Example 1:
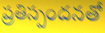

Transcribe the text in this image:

ప్రతిస్పందనతో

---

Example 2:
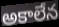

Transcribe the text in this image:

అకాలేన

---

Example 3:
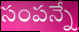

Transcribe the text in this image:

సంపన్నే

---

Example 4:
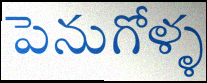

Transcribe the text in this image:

పెనుగోళ్ళ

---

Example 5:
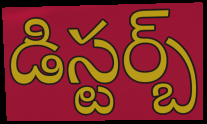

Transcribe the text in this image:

డిస్టర్బ్